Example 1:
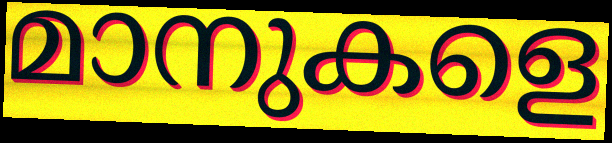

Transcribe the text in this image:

മാനുകളെ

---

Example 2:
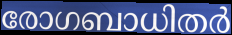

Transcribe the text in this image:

രോഗബാധിതർ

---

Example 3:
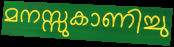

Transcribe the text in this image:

മനസ്സുകാണിച്ചു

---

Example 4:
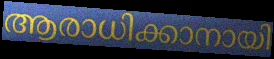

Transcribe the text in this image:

ആരാധിക്കാനായി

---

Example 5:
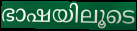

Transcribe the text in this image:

ഭാഷയിലൂടെ